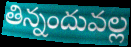
తిన్నందువల్ల